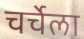
चर्चेला